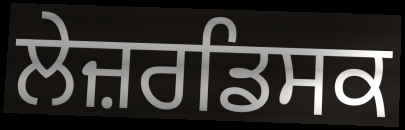
ਲੇਜ਼ਰਡਿਸਕ